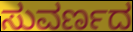
ಸುವರ್ಣದ